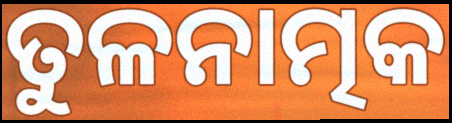
ତୁଳନାତ୍ମକ